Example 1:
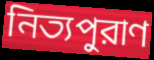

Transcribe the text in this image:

নিত্যপুরাণ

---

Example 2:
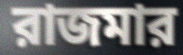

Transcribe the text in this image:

রাজমার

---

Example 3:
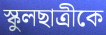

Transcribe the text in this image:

স্কুলছাত্রীকে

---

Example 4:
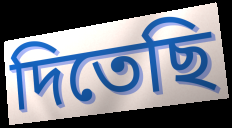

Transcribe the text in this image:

দিতেছি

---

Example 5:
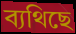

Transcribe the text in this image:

ব্যথিছে